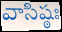
వాసిష్ఠః